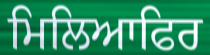
ਮਿਲਿਆਫਿਰ